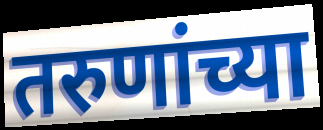
तरुणांच्या